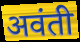
अवंती